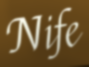
Nife